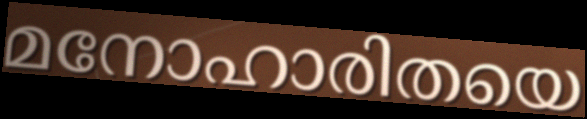
മനോഹാരിതയെ